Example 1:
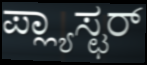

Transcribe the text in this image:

ಪ್ಲ್ಯಾಸ್ಟರ್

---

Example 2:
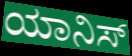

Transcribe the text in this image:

ಯಾನಿಸ್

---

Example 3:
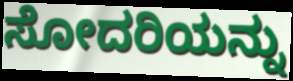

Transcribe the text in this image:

ಸೋದರಿಯನ್ನು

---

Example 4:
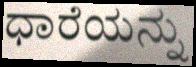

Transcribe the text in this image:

ಧಾರೆಯನ್ನು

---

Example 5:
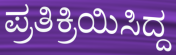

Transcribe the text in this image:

ಪ್ರತಿಕ್ರಿಯಿಸಿದ್ದ